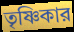
তৃষ্ণিকার